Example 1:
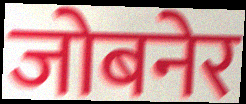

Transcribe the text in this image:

जोबनेर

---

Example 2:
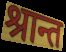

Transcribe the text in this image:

श्रान्त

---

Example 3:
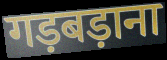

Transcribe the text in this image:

गड़बड़ाना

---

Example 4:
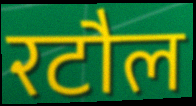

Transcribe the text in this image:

रटौल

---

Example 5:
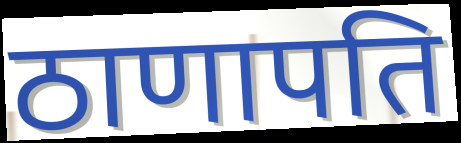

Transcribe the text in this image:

ठाणापति